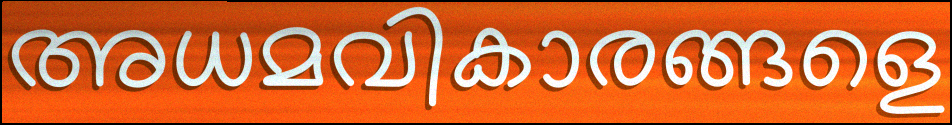
അധമവികാരങ്ങളെ